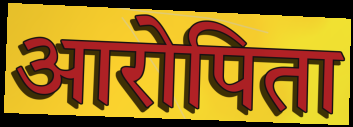
आरोपिता